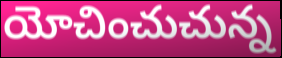
యోచించుచున్న